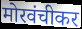
मोरवंचीकर